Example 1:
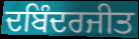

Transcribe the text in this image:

ਦਬਿੰਦਰਜੀਤ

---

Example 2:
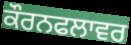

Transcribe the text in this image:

ਕੌਰਨਫਲਾਵਰ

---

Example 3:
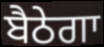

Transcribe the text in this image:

ਬੈਠੇਗਾ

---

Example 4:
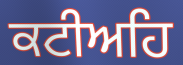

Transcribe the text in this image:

ਕਟੀਅਹਿ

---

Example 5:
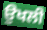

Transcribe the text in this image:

ਉਖਲੀ